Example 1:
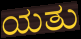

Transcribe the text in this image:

ಯತು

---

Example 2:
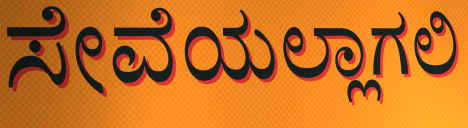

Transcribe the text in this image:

ಸೇವೆಯಲ್ಲಾಗಲಿ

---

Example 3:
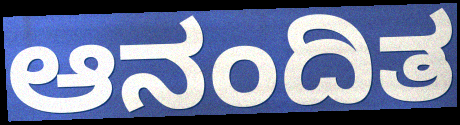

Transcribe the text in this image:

ಆನಂದಿತ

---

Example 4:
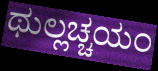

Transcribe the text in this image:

ಥುಲ್ಲಚ್ಚಯಂ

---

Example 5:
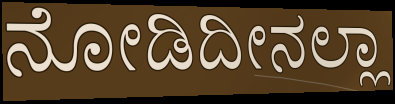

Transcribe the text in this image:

ನೋಡಿದೀನಲ್ಲಾ